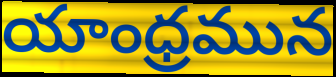
యాంధ్రమున